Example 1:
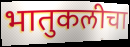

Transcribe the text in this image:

भातुकलीचा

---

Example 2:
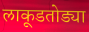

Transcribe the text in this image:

लाकूडतोड्या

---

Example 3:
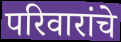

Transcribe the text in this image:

परिवारांचे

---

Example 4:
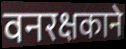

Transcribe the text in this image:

वनरक्षकाने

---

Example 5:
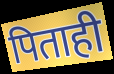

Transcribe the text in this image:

पिताही